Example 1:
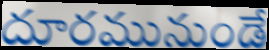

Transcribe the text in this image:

దూరమునుండే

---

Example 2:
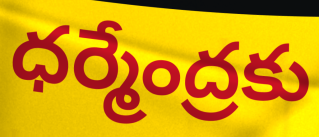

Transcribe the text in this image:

ధర్మేంద్రకు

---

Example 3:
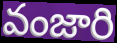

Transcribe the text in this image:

వంజారి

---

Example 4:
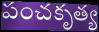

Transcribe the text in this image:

పంచకృత్య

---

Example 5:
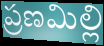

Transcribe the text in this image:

ప్రణమిల్లి